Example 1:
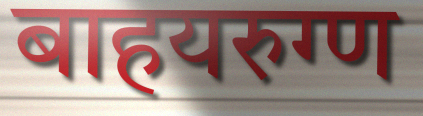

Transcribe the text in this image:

बाहयरुग्ण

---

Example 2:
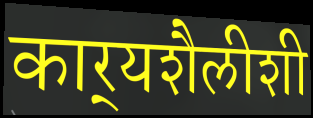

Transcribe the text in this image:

कार्यशैलीशी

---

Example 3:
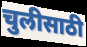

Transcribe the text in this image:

चुलीसाठी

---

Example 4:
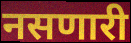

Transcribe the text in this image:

नसणारी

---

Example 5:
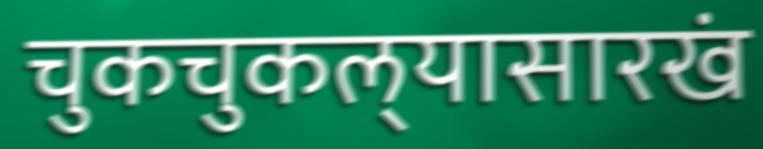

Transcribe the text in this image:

चुकचुकल्यासारखं